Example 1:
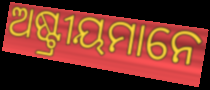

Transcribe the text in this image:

ଅଷ୍ଟ୍ରୀୟମାନେ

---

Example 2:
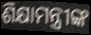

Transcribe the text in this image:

ଶିକ୍ଷାମନ୍ତ୍ରୀଙ୍କ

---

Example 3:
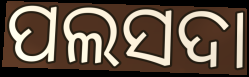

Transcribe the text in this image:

ପଲସଦା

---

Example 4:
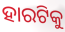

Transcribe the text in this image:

ହାରଟିକୁ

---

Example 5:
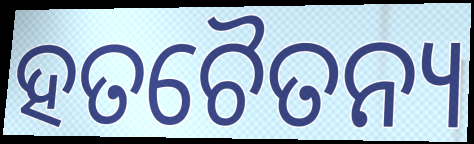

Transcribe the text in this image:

ହତଚୈତନ୍ୟ